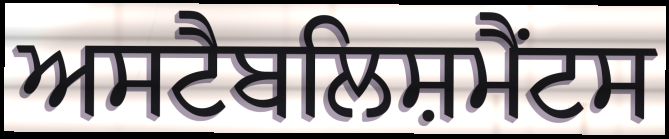
ਅਸਟੈਬਲਿਸ਼ਮੈਂਟਸ